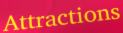
Attractions